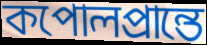
কপোলপ্রান্তে